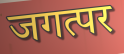
जगत्पर